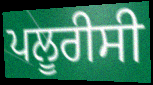
ਪਲੂਰੀਸੀ